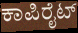
ಕಾಪಿರೈಟ್